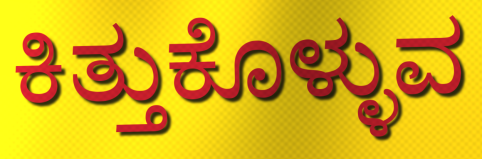
ಕಿತ್ತುಕೊಳ್ಳುವ